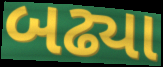
બઢ્યા